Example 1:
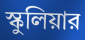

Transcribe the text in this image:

স্কুলিয়ার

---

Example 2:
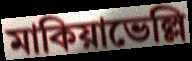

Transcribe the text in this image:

মাকিয়াভেল্লি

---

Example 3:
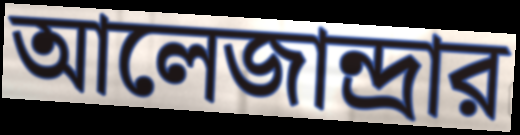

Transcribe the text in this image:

আলেজান্দ্রার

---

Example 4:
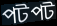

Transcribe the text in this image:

পটপট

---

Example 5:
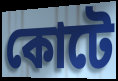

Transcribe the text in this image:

কোটে